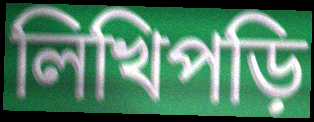
লিখিপড়ি